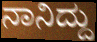
ನಾನಿದ್ದು